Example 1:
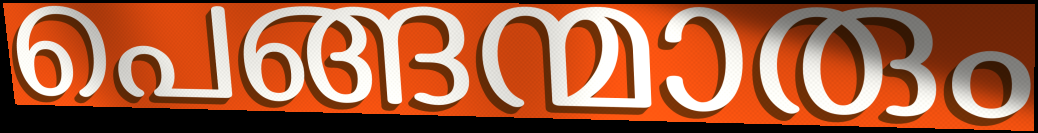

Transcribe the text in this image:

പെങ്ങന്മാരും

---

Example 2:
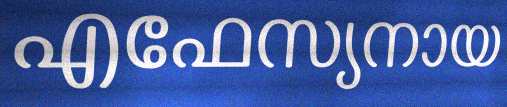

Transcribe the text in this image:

എഫേസ്യനായ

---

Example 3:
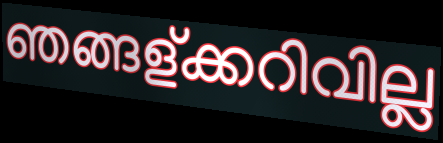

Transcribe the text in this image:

ഞങ്ങള്ക്കറിവില്ല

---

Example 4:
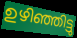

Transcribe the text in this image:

ഉഴിഞ്ഞിട്ടു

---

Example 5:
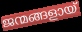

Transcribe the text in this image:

ജന്മങ്ങളായ്